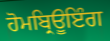
ਹੋਮਬ੍ਰਿਊਇੰਗ